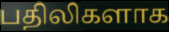
பதிலிகளாக